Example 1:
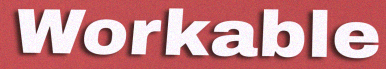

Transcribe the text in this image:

Workable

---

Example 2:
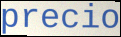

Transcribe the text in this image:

precio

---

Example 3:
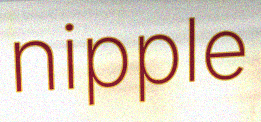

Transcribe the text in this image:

nipple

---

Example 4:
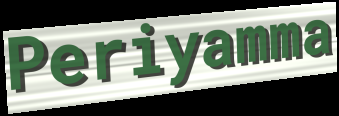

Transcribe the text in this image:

Periyamma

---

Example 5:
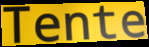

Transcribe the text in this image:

Tente